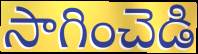
సాగించెడి